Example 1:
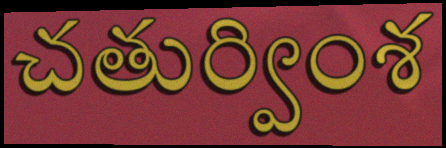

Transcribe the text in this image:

చతుర్వింశ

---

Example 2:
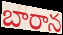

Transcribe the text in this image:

బారాన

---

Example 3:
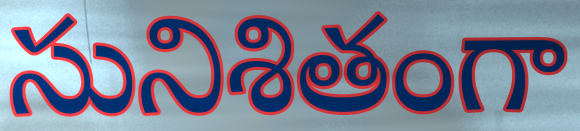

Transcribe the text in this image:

సునిశితంగా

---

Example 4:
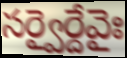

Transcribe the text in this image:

సర్వైర్దేవైః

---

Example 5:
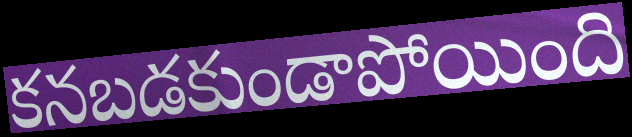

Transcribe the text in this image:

కనబడకుండాపోయింది